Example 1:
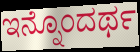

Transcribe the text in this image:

ಇನ್ನೊಂದರ್ಥ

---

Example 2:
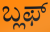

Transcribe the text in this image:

ಬ್ಲಫ್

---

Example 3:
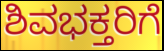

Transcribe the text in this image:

ಶಿವಭಕ್ತರಿಗೆ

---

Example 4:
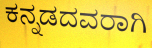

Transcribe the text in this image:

ಕನ್ನಡದವರಾಗಿ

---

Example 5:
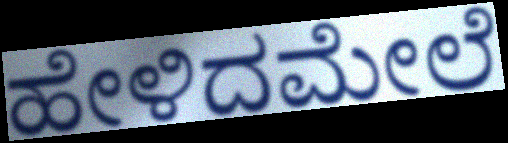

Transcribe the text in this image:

ಹೇಳಿದಮೇಲೆ